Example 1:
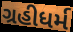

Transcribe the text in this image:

ગ્રહીધર્મ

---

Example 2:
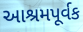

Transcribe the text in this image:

આશ્રમપૂર્વક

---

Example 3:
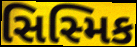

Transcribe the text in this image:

સિસ્મિક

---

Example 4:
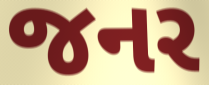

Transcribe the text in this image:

જનર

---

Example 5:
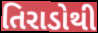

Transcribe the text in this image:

તિરાડોથી